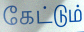
கேட்டும்